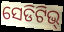
ସେଡିଟିଭ୍